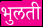
भुलती